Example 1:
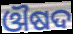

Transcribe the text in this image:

ଔଷଦ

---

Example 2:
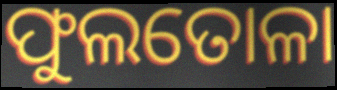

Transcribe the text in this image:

ଫୁଲତୋଳା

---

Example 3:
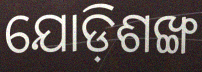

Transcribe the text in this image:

ଯୋଡ଼ିଶଙ୍ଖ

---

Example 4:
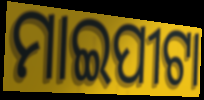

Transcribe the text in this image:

ମାଇପୀଟା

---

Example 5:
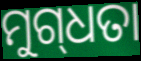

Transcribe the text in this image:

ମୁଗ୍‌ଧତା